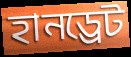
হানড্রেট